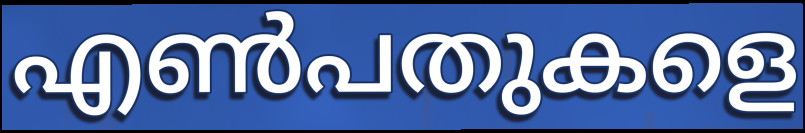
എൺപതുകളെ